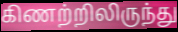
கிணற்றிலிருந்து